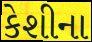
કેશીના